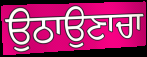
ਉਠਾਉਣਾਚਾ